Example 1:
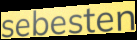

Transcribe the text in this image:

sebesten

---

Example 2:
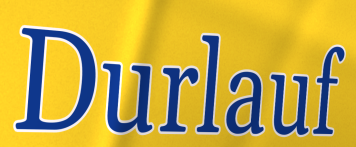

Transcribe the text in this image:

Durlauf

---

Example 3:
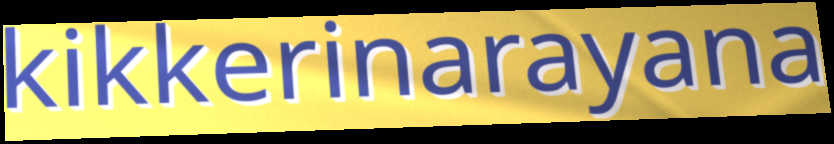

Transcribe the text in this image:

kikkerinarayana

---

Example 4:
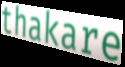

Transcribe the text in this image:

thakare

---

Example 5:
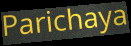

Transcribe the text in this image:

Parichaya